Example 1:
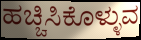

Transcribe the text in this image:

ಹಚ್ಚಿಸಿಕೊಳ್ಳುವ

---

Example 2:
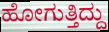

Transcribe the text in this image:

ಹೋಗುತ್ತಿದ್ದು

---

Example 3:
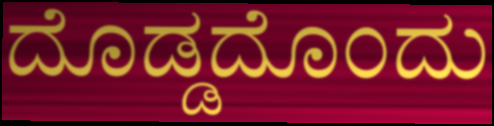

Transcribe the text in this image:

ದೊಡ್ಡದೊಂದು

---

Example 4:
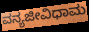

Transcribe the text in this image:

ವನ್ಯಜೀವಿಧಾಮ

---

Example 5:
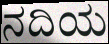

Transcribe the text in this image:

ನದಿಯ